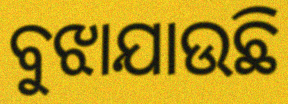
ବୁଝାଯାଉଛି